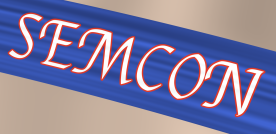
SEMCON